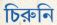
চিরুনি